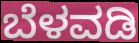
ಬೆಳವಡಿ